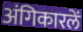
अंगिकारलें